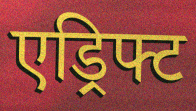
एड्रिफ्ट